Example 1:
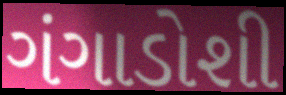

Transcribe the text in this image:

ગંગાડોશી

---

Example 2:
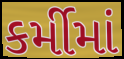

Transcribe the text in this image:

કર્મીમાં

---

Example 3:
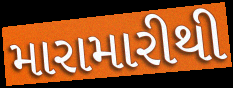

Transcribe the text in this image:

મારામારીથી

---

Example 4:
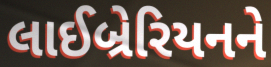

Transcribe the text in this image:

લાઈબ્રેરિયનને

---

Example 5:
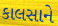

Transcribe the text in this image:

કાલસાને